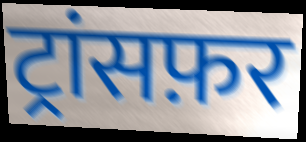
ट्रांसफ़र